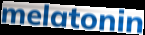
melatonin